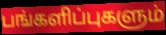
பங்களிப்புகளும்